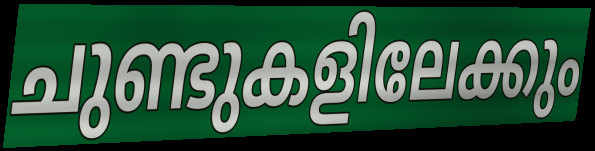
ചുണ്ടുകളിലേക്കും